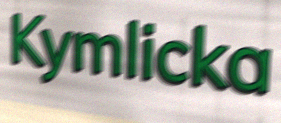
Kymlicka